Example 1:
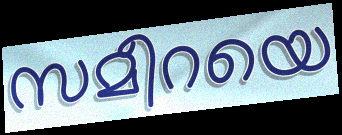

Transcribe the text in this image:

സമീറയെ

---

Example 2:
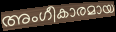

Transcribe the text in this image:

അംഗീകാരമായ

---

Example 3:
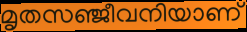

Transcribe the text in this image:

മൃതസഞ്ജീവനിയാണ്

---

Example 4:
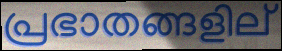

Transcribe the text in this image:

പ്രഭാതങ്ങളില്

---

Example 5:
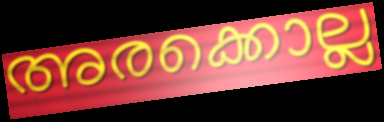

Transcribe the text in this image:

അരക്കൊല്ല